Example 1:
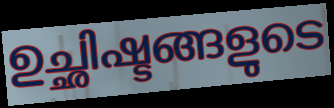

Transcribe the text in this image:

ഉച്ഛിഷ്ടങ്ങളുടെ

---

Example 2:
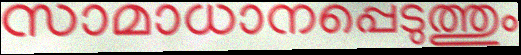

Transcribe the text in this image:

സാമാധാനപ്പെടുത്തും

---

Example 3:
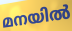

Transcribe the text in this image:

മനയിൽ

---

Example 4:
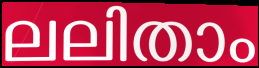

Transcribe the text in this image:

ലലിതാം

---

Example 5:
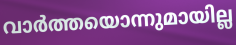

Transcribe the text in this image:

വാർത്തയൊന്നുമായില്ല